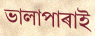
ভালাপাৰাই